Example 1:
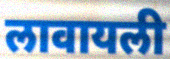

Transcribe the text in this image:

लावायली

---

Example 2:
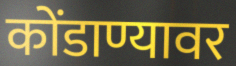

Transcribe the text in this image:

कोंडाण्यावर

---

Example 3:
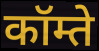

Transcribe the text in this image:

कॉम्ते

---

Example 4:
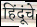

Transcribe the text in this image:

हिंदूंचे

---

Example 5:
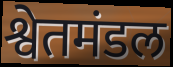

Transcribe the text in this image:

श्वेतमंडल